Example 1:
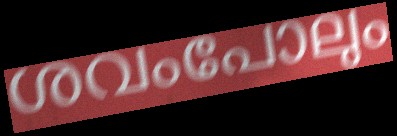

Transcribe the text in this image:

ശവംപോലും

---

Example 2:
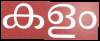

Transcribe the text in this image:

കളം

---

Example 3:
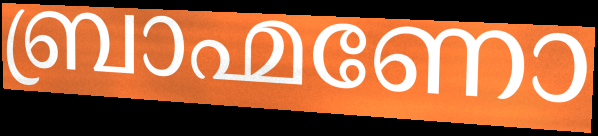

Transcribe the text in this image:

ബ്രാഹ്മണോ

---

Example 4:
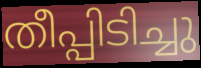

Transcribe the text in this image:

തീപ്പിടിച്ചു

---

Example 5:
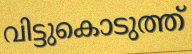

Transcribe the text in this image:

വിട്ടുകൊടുത്ത്